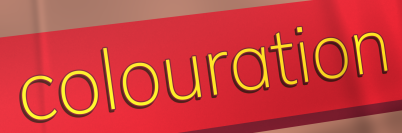
colouration